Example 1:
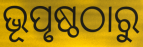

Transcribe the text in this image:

ଭୂପୃଷ୍ଠଠାରୁ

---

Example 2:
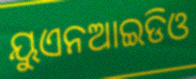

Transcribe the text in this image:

ୟୁଏନଆଇଡିଓ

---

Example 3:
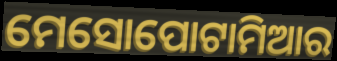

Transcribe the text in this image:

ମେସୋପୋଟାମିଆର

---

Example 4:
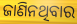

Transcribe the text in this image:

ଜାଣିନଥିବାର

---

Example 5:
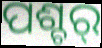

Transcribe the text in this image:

ପଶ୍ଚର୍